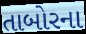
તાબોરના